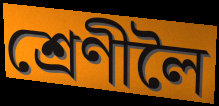
শ্ৰেণীলৈ